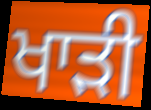
ਖਾਡ਼ੀ